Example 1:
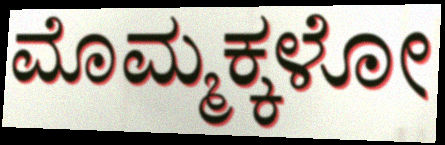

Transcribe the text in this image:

ಮೊಮ್ಮಕ್ಕಳೋ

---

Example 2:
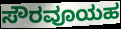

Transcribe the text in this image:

ಸೌರವೂಯಹ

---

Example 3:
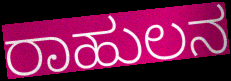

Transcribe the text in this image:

ರಾಹುಲನ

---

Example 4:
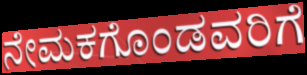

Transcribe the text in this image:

ನೇಮಕಗೊಂಡವರಿಗೆ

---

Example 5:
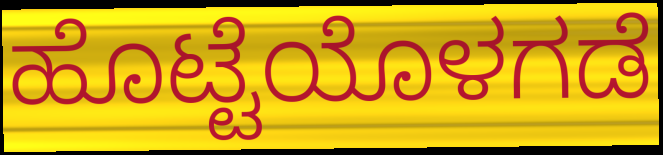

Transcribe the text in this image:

ಹೊಟ್ಟೆಯೊಳಗಡೆ